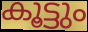
കൂട്ടും